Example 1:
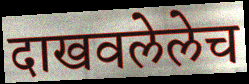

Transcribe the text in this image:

दाखवलेलेच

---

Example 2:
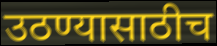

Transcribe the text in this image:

उठण्यासाठीच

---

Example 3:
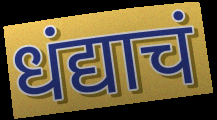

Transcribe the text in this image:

धंद्याचं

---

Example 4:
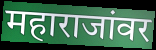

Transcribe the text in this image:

महाराजांवर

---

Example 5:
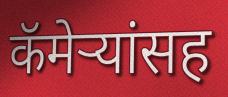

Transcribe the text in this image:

कॅमेऱ्यांसह